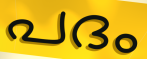
പദം